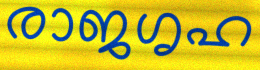
രാജഗൃഹ